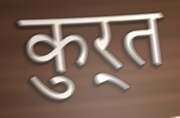
कुर्त